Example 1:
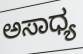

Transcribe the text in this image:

ಅಸಾಧ್ಯ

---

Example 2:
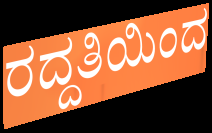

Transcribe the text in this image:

ರದ್ದತಿಯಿಂದ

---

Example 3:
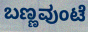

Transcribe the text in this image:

ಬಣ್ಣವುಂಟೆ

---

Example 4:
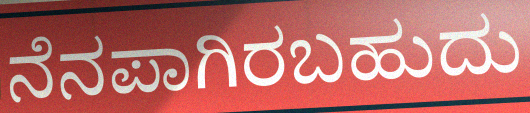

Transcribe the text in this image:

ನೆನಪಾಗಿರಬಹುದು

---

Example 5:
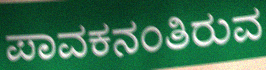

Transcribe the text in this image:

ಪಾವಕನಂತಿರುವ